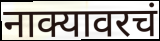
नाक्यावरचं